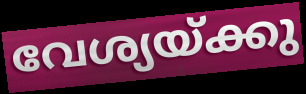
വേശ്യയ്ക്കു